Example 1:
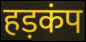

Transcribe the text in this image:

हड़कंप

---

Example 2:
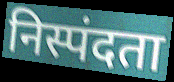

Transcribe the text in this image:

निस्पंदता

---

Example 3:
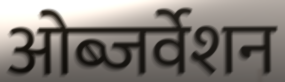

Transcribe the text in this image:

ओब्ज़र्वेशन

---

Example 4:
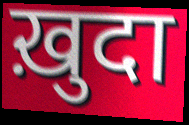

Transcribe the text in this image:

ख़ुदा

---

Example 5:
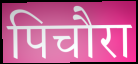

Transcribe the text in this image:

पिचौरा